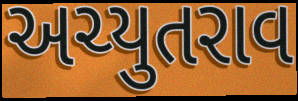
અચ્યુતરાવ